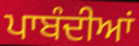
ਪਾਬੰਦੀਆਂ